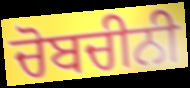
ਚੋਬਚੀਨੀ